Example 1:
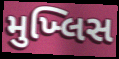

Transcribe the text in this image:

મુખ્લિસ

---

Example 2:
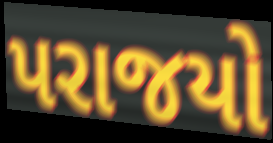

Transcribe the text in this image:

પરાજયો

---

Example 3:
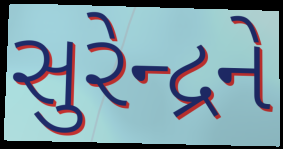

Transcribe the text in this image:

સુરેન્દ્રને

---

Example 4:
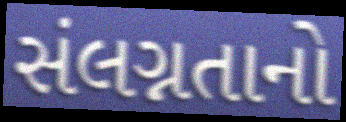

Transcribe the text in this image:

સંલગ્નતાનો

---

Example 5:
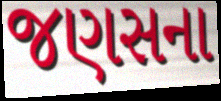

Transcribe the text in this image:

જણસના